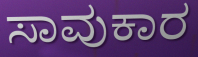
ಸಾವುಕಾರ